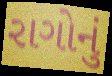
રાગોનું